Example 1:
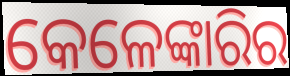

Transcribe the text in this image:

କେଳେଙ୍କାରିର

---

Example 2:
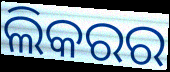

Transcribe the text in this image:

ଲିକରର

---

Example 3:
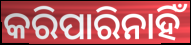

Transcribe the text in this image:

କରିପାରିନାହିଁ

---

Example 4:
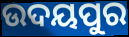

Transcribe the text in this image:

ଉଦୟପୁର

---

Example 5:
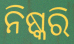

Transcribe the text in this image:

ନିଷ୍କରି